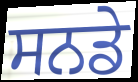
ਸਨਡੇ